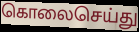
கொலைசெய்து